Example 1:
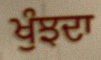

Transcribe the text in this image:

ਖੁੰਝਦਾ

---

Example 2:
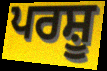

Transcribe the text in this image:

ਪਰਸ਼ੂ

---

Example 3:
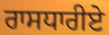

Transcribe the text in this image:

ਰਾਸਧਾਰੀਏ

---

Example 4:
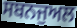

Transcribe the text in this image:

ਸਬਨਜੁਅਲ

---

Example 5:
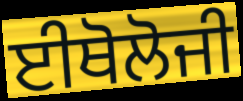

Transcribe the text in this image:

ਈਥੋਲੋਜੀ